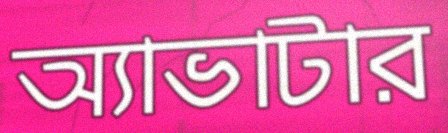
অ্যাভাটার